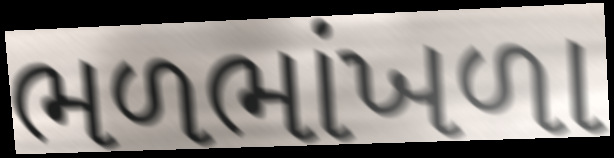
ભળભાંખળા